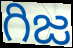
గిజ